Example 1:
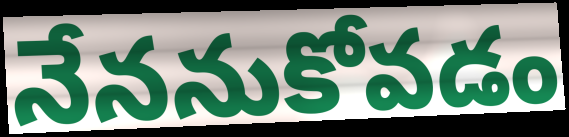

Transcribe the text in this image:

నేననుకోవడం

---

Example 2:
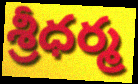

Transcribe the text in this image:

శ్రీధర్మ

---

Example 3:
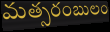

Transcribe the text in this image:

మత్సరంబులం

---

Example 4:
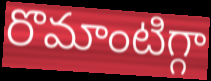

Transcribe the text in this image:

రొమాంటిగ్గా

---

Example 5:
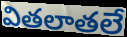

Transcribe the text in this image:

వితలాతలే